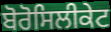
ਬੋਰੋਸਿਲੀਕੇਟ